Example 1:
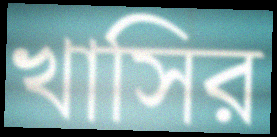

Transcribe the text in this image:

খাসির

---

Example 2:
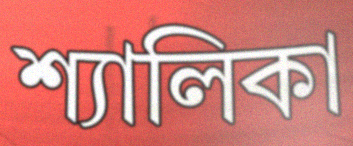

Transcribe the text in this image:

শ্যালিকা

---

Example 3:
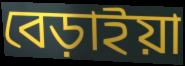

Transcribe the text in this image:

বেড়াইয়া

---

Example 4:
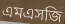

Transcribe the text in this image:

এমএসজি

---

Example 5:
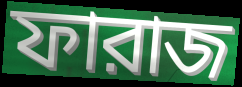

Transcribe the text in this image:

ফারাজ